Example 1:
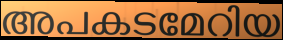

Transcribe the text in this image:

അപകടമേറിയ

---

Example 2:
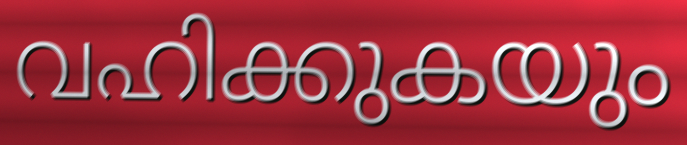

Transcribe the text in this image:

വഹിക്കുകയും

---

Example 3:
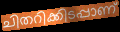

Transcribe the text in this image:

ചിതറിക്കിടപ്പാണ്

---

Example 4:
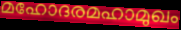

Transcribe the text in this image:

മഹോദരമഹാമുഖം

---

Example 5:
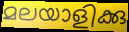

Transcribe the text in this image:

മലയാളിക്കു